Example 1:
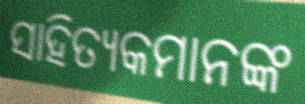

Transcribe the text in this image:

ସାହିତ୍ୟକମାନଙ୍କ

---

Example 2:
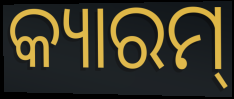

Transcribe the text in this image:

କ୍ୟାରମ୍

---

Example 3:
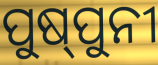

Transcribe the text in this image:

ପୁଷ୍‌ପୁନୀ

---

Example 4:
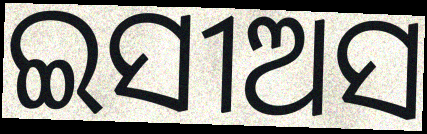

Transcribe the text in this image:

ଇସୀଅସ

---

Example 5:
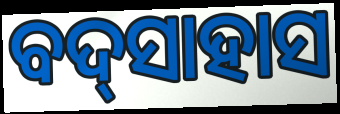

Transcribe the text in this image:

ବଦ୍‌ସାହାସ